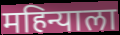
महिन्याला